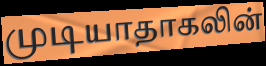
முடியாதாகலின்